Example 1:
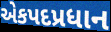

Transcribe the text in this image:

એકપદપ્રધાન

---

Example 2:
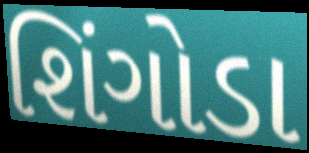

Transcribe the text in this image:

શિંગોડા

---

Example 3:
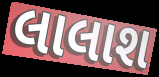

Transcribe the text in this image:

લાલાશ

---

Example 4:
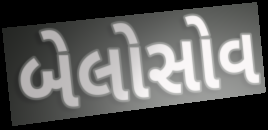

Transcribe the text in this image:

બેલોસોવ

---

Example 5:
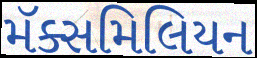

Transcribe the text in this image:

મૅક્સમિલિયન